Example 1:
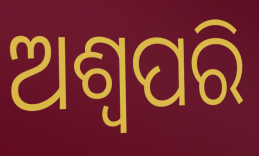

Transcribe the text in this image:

ଅଶ୍ୱପରି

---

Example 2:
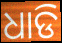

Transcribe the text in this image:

ଧାଡି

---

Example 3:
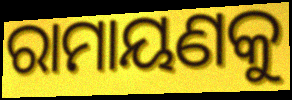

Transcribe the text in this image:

ରାମାୟଣକୁ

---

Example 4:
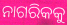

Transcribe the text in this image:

ନାଗରିକକୁ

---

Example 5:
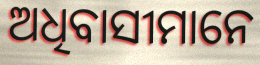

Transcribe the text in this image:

ଅଧିବାସୀମାନେ